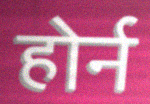
होर्न